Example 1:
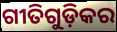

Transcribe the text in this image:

ଗୀତିଗୁଡ଼ିକର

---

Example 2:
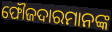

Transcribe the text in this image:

ଫୌଜଦାରମାନଙ୍କ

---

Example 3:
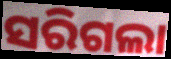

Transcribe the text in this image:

ସରିଗଲା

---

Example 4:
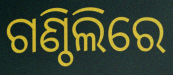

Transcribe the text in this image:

ଗଣ୍ଠିଲିରେ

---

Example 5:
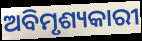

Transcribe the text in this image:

ଅବିମୃଶ୍ୟକାରୀ